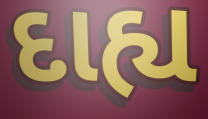
દાહ્ય